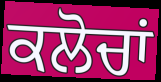
ਕਲੋਚਾਂ